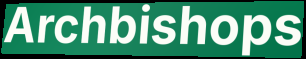
Archbishops